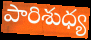
పారిశుధ్య